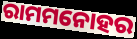
ରାମମନୋହର